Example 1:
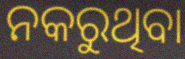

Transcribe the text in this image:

ନକରୁଥିବା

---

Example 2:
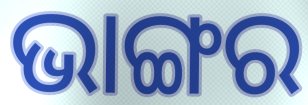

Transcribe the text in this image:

ଭାଙ୍ଗର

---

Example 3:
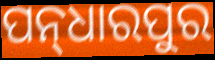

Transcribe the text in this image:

ପନ୍‌ଧାରପୁର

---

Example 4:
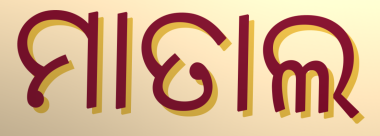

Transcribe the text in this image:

ମାତାଲ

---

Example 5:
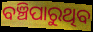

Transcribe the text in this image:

ବଞ୍ଚିପାରୁଥିବ